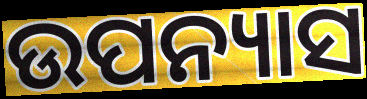
ଉପନ୍ୟାସ